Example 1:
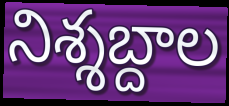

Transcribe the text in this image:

నిశ్శబ్దాల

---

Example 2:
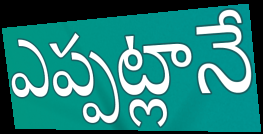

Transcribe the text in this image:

ఎప్పట్లానే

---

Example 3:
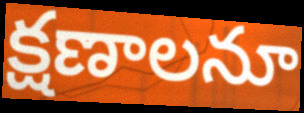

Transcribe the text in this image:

క్షణాలనూ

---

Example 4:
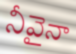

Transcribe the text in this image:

నీవైనా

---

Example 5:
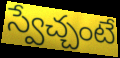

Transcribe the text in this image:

స్వేచ్చంటే